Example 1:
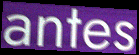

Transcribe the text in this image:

antes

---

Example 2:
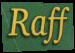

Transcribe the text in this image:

Raff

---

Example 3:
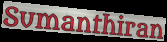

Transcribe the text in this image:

Sumanthiran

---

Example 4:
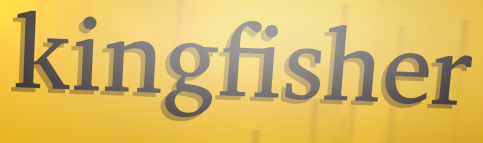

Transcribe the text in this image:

kingfisher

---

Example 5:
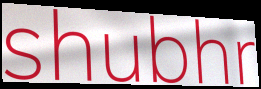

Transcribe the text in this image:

shubhr